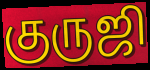
குருஜி